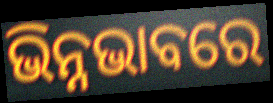
ଭିନ୍ନଭାବରେ